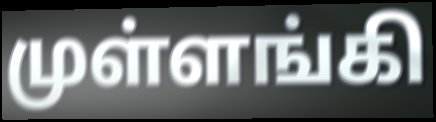
முள்ளங்கி